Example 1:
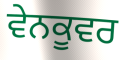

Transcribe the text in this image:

ਵੇਨਕੂਵਰ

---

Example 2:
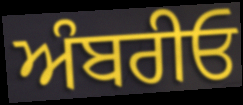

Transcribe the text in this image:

ਅੰਬਰੀਓ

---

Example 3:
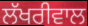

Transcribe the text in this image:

ਲੱਖਰੀਵਾਲ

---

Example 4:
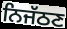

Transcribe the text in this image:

ਨਿਜੱਠਣ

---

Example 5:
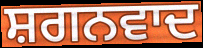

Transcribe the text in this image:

ਸ਼ਗਨਵਾਦ